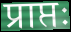
प्राप्तः